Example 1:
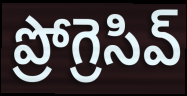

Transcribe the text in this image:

ప్రోగ్రెసివ్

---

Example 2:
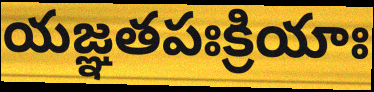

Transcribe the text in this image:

యజ్ఞతపఃక్రియాః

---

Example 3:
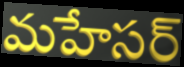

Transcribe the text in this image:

మహేసర్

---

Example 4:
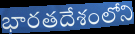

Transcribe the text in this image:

భారతదేశంలోని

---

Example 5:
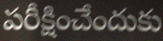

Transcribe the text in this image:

పరీక్షించేందుకు